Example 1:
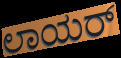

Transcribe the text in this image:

ಲಾಯರ್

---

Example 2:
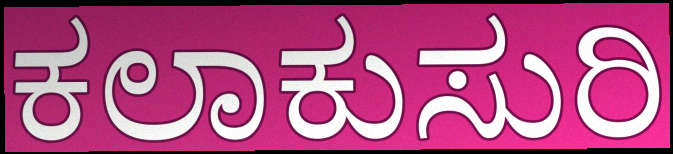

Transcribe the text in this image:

ಕಲಾಕುಸುರಿ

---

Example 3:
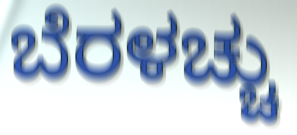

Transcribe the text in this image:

ಬೆರಳಚ್ಚು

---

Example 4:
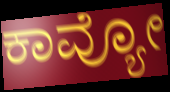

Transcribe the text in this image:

ಕಾವ್ಯೋ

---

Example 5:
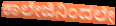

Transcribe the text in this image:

ಕಾಲೇಜಿನಿಂದಲೇ